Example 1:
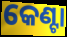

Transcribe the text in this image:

କେଣ୍ଟା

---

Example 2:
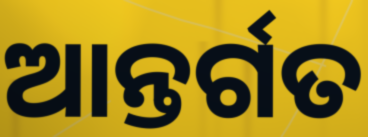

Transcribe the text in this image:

ଆନ୍ତର୍ଗତ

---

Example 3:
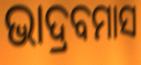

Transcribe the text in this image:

ଭାଦ୍ରବମାସ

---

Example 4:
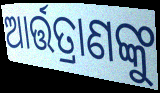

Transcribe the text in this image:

ଆର୍ତ୍ତତ୍ରାଣଙ୍କୁ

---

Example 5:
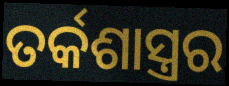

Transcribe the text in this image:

ତର୍କଶାସ୍ତ୍ରର